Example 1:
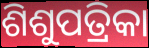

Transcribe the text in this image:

ଶିଶୁପତ୍ରିକା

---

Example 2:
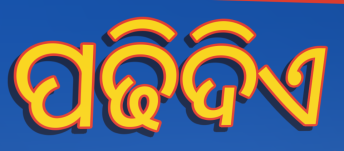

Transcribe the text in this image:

ପଢିଦିଏ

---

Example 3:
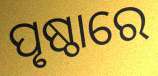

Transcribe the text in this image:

ପୃଷ୍ଠାରେ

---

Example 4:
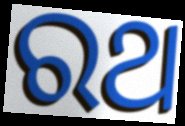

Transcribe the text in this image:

ରଥ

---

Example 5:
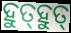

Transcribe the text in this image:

ହୁତ୍‌ହୁତ୍